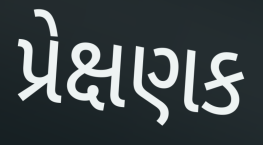
પ્રેક્ષણક